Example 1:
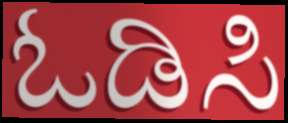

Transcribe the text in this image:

ಓಡಿಸಿ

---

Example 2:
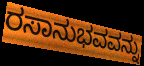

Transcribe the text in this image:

ರಸಾನುಭವವನ್ನು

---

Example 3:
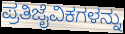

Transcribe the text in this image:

ಪ್ರತಿಜೈವಿಕಗಳನ್ನು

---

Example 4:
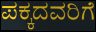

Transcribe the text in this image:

ಪಕ್ಕದವರಿಗೆ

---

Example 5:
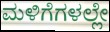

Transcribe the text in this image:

ಮಳಿಗೆಗಳಲ್ಲೇ